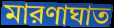
মারণাঘাত